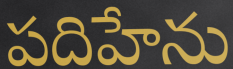
పదిహేను